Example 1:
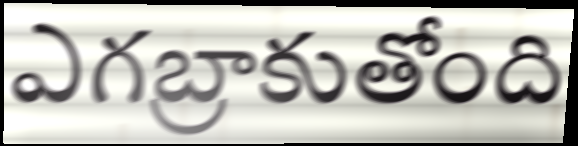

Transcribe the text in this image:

ఎగబ్రాకుతోంది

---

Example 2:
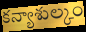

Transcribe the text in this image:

కన్యాశుల్కం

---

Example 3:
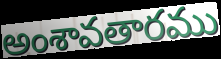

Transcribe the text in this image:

అంశావతారము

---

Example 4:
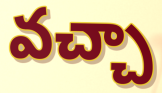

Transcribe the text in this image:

వచ్చా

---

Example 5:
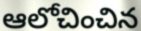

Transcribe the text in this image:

ఆలోచించిన